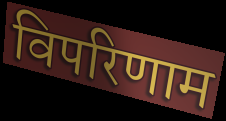
विपरिणाम